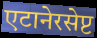
एटानेरसेप्ट